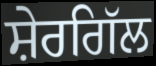
ਸ਼ੇਰਗਿੱਲ